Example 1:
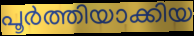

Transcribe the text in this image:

പൂർത്തിയാക്കിയ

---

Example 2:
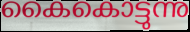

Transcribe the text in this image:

കൈകൊട്ടുന്നു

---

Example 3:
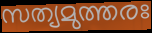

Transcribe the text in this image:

സത്യമുത്തരഃ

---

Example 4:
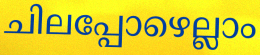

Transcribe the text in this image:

ചിലപ്പോഴെല്ലാം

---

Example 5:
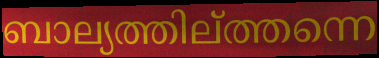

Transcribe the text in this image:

ബാല്യത്തില്ത്തന്നെ